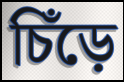
চিঁড়ে